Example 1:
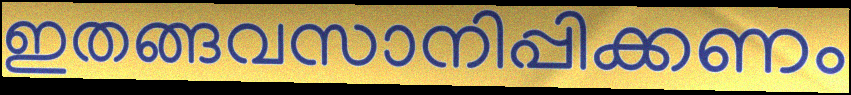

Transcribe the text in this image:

ഇതങ്ങവസാനിപ്പിക്കണം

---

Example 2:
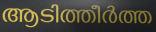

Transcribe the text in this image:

ആടിത്തീർത്ത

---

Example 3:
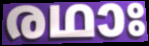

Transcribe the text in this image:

രഥാഃ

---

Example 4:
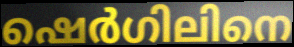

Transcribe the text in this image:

ഷെർഗിലിനെ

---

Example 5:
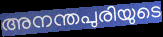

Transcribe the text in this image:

അനന്തപുരിയുടെ